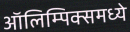
ऑलिम्पिक्समध्ये